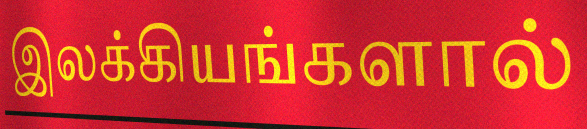
இலக்கியங்களால்